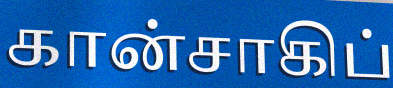
கான்சாகிப்